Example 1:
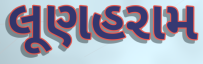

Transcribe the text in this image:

લૂણહરામ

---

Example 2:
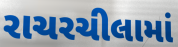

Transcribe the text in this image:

રાચરચીલામાં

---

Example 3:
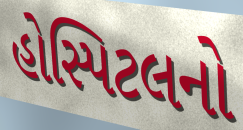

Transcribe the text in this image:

હોસ્પિટલનો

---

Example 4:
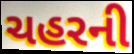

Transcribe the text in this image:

ચહરની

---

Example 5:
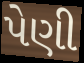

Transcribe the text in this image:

પેણી